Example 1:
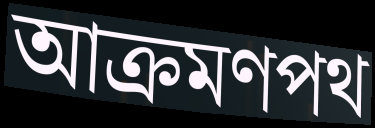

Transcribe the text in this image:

আক্রমণপথ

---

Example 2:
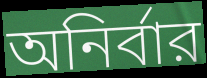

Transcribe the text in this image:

অনির্বার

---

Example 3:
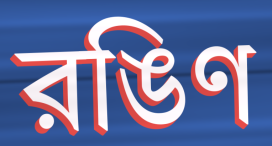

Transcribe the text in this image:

রঙিণ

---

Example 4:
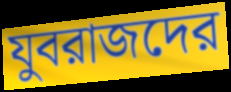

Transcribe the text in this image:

যুবরাজদের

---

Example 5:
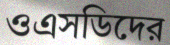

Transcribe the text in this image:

ওএসডিদের